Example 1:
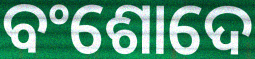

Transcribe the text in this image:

ବଂଶୋଦେ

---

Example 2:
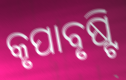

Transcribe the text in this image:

କୃପାବୃଷ୍ଟି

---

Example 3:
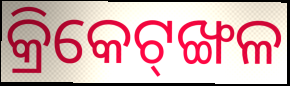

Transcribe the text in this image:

କ୍ରିକେଟ୍‌ଙ୍ଖଳ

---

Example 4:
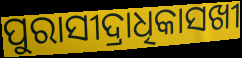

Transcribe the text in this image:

ପୁରାସୀଦ୍ରାଧିକାସଖୀ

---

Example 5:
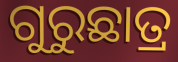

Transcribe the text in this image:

ଗୁରୁଛାତ୍ର